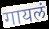
गायलं